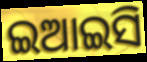
ଇଆଇସି